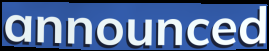
announced